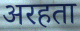
अरहता